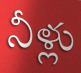
నీళ్లు